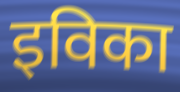
इविका